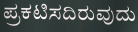
ಪ್ರಕಟಿಸದಿರುವುದು